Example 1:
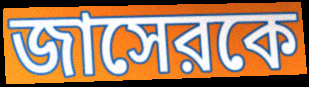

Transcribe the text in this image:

জাসেরকে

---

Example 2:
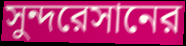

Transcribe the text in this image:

সুন্দরেসানের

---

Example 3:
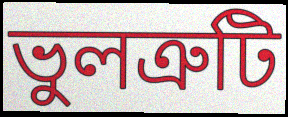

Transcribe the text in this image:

ভুলত্রুটি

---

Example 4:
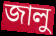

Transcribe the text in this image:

জালু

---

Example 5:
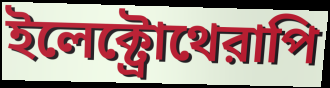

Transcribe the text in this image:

ইলেক্ট্রোথেরাপি